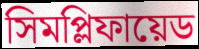
সিমপ্লিফায়েড